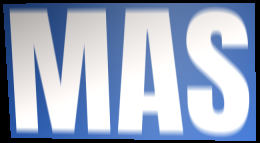
MAS